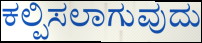
ಕಲ್ಪಿಸಲಾಗುವುದು